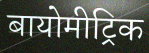
बायोमीट्रिक